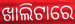
ଖାଲିଟାରେ